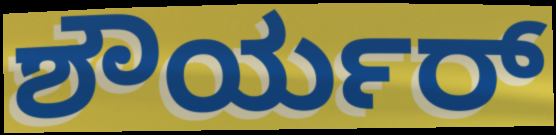
ಶೌರ್ಯರ್